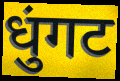
धुंगट